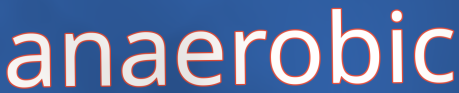
anaerobic